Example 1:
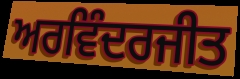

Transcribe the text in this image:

ਅਰਵਿੰਦਰਜੀਤ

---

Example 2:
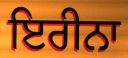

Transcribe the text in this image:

ਇਰੀਨਾ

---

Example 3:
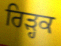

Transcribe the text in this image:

ਰਿੜ੍ਹਕ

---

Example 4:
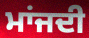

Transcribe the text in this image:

ਮਾਂਜਦੀ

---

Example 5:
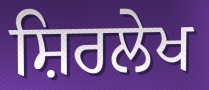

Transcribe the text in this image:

ਸ਼ਿਰਲੇਖ